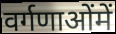
वर्गणाओंमें